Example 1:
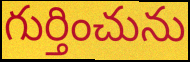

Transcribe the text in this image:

గుర్తించును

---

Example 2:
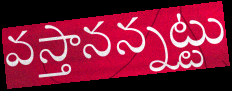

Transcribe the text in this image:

వస్తానన్నట్టు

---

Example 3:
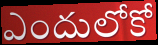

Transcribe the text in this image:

ఎందులోకో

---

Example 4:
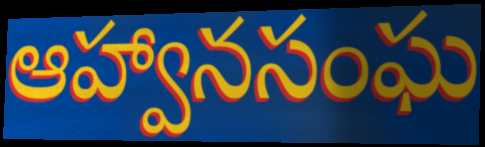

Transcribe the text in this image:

ఆహ్వానసంఘ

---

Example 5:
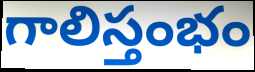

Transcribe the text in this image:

గాలిస్తంభం